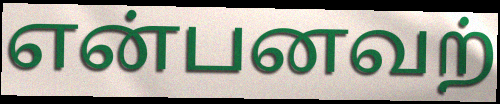
என்பனவற்